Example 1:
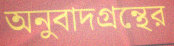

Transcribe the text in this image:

অনুবাদগ্রন্থের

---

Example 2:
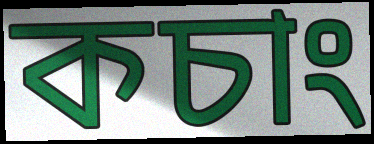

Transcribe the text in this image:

কচাং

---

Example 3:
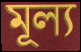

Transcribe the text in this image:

মূল্য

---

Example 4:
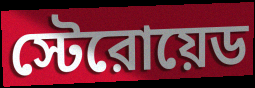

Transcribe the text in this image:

স্টেরোয়েড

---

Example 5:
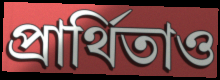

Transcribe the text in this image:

প্রার্থিতাও